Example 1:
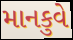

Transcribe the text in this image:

માનકુવે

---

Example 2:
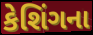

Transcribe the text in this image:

કેશિંગના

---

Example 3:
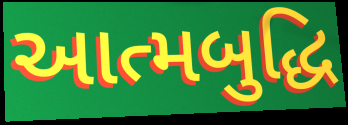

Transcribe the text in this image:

આત્મબુદ્ધિ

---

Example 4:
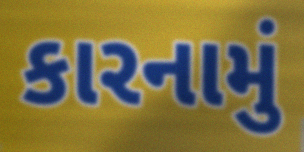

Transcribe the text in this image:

કારનામું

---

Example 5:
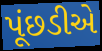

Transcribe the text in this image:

પૂંછડીએ